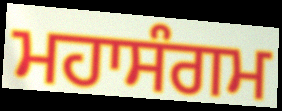
ਮਹਾਸੰਗਮ